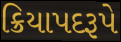
ક્રિયાપદરૂપે